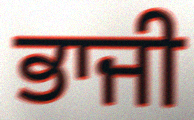
ਭਾਜੀ